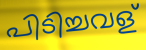
പിടിച്ചവള്